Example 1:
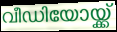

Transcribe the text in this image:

വീഡിയോയ്ക്ക്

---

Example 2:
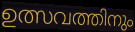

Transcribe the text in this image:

ഉത്സവത്തിനും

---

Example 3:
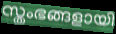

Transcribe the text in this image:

സ്തംഭങ്ങളായി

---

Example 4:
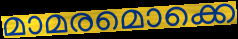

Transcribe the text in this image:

മാമരമൊക്കെ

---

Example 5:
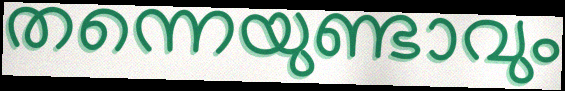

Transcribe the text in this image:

തന്നെയുണ്ടാവും